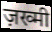
ज़ख्मी